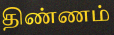
திண்ணம்